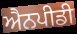
ਐਨਪੀਡੀ